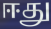
ஈது